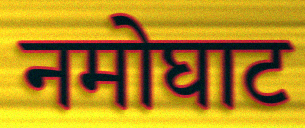
नमोघाट